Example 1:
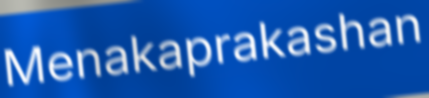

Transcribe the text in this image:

Menakaprakashan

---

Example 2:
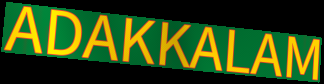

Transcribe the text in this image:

ADAKKALAM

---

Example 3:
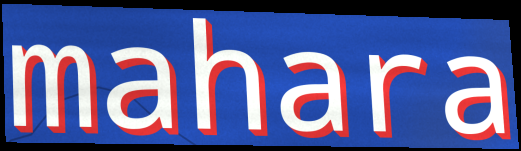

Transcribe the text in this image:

mahara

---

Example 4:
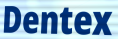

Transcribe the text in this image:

Dentex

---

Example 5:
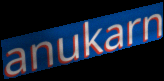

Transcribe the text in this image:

anukarn